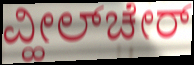
ವ್ಹೀಲ್‌ಚೇರ್